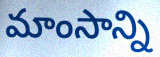
మాంసాన్ని